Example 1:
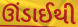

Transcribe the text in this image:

ઊંડાઈથી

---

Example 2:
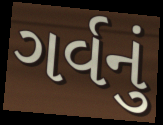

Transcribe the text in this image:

ગર્વનું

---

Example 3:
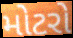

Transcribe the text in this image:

મોટરો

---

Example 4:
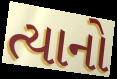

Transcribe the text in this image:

ત્યાનો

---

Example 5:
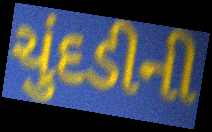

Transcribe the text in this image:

ચુંદડીની